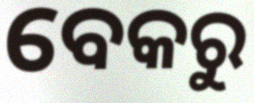
ବେକରୁ